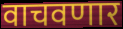
वाचवणार